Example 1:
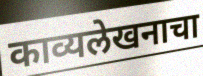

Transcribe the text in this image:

काव्यलेखनाचा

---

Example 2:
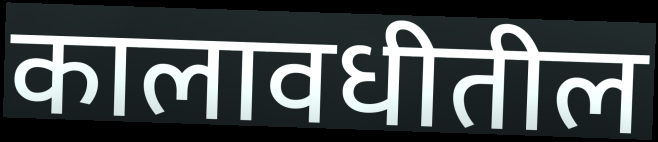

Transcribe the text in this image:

कालावधीतील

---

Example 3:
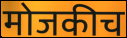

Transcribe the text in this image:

मोजकीच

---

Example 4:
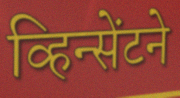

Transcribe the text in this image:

व्हिन्सेंटने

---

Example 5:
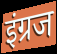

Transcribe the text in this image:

इंग्रज